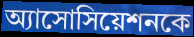
অ্যাসোসিয়েশনকে